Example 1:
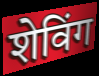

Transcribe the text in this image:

शेविंग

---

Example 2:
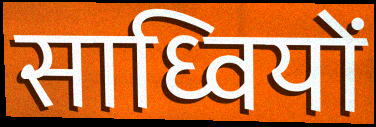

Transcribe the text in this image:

साध्वियों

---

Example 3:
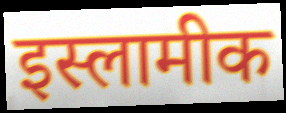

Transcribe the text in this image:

इस्लामीक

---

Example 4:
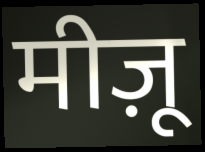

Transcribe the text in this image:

मीज़ू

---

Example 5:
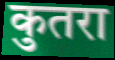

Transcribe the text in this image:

कुतरा